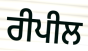
ਰੀਪੀਲ